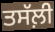
ਤਸੱਲ਼ੀ